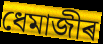
ধেমাজীৰ